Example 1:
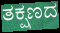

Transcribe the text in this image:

ತಕ್ಷಣದ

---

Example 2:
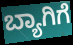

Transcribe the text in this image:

ಬ್ಯಾಗಿಗೆ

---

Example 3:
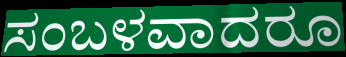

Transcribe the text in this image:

ಸಂಬಳವಾದರೂ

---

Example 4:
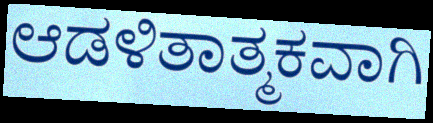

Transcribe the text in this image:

ಆಡಳಿತಾತ್ಮಕವಾಗಿ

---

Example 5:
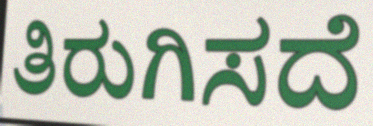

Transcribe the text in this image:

ತಿರುಗಿಸದೆ